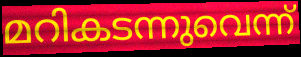
മറികടന്നുവെന്ന്